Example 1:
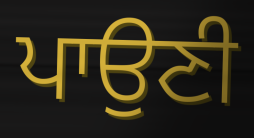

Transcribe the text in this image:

ਪਾਉਣੀ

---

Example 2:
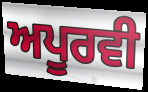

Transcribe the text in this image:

ਅਪੂਰਵੀ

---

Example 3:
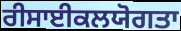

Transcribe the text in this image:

ਰੀਸਾਈਕਲਯੋਗਤਾ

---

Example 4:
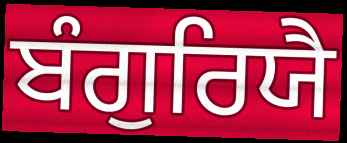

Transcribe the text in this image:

ਬੰਗੁਰਿਯੈ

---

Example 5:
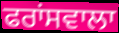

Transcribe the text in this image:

ਫਰਾਂਸਵਾਲਾ